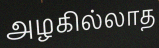
அழகில்லாத